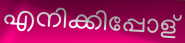
എനിക്കിപ്പോള്